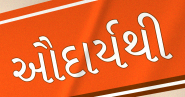
ઔદાર્યથી